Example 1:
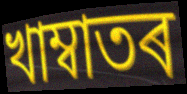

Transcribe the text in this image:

খাম্বাতৰ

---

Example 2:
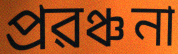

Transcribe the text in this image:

প্ৰৱঞ্চনা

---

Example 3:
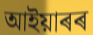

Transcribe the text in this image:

আইয়াৰৰ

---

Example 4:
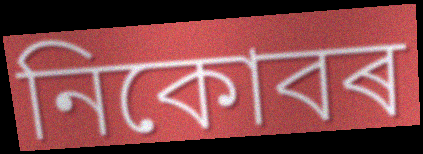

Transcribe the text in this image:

নিকোবৰ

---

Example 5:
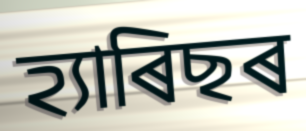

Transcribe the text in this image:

হ্যাৰিছৰ